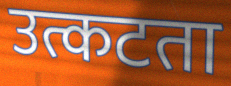
उत्कटता